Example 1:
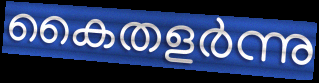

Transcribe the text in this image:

കൈതളർന്നു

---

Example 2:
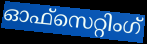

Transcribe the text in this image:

ഓഫ്സെറ്റിംഗ്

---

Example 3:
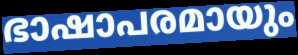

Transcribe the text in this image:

ഭാഷാപരമായും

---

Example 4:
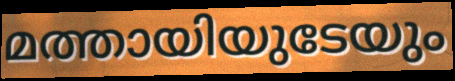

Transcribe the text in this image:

മത്തായിയുടേയും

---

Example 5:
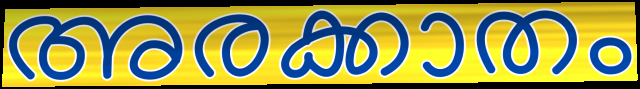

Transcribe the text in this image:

അരക്കാതം